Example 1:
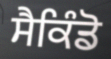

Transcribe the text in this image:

ਸੈਕਿੰਡੋ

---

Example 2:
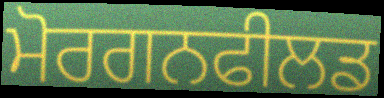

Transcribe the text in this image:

ਮੋਰਗਨਫੀਲਡ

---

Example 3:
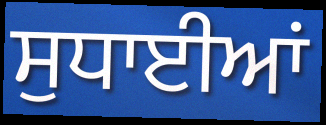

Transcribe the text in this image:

ਸੁਧਾਈਆਂ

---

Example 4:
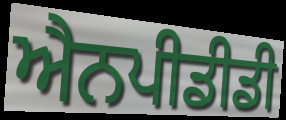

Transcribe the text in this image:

ਐਨਪੀਡੀਡੀ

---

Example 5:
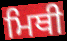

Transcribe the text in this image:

ਮਿਥੀ